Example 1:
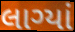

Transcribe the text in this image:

લાગ્યાં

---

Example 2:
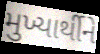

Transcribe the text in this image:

મુખ્યાર્થીને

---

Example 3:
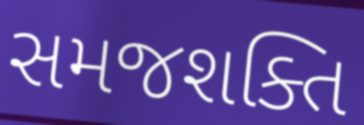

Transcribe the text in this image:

સમજશક્તિ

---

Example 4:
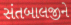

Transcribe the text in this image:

સંતબાલજીને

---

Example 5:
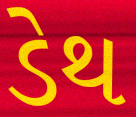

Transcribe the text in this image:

ડેથ